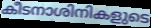
കീടനാശിനികളുടെ